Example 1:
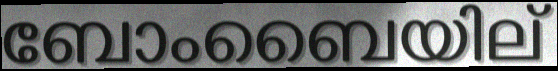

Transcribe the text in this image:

ബോംബൈയില്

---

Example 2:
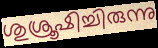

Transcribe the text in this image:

ശുശ്രൂഷിച്ചിരുന്നു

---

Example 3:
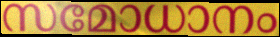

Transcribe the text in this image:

സമോധാനം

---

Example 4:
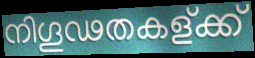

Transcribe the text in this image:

നിഗൂഢതകള്ക്ക്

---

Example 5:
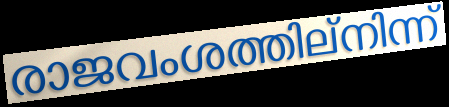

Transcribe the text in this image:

രാജവംശത്തില്നിന്ന്